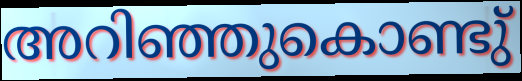
അറിഞ്ഞുകൊണ്ടു്